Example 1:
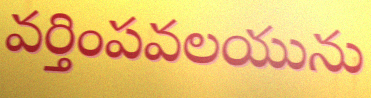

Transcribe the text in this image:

వర్తింపవలయును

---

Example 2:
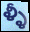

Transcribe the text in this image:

ళ్ళీ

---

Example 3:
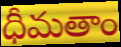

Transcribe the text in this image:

ధీమతాం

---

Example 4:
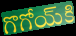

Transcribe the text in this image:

గొగోయ్‌కి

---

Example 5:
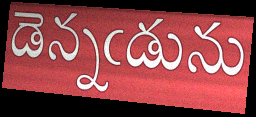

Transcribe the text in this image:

డెన్నఁడును